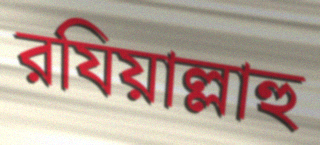
রযিয়াল্লাহু